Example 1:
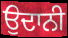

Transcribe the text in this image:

ਉਦਾਨੀ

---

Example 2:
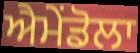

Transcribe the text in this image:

ਐਮੇਂਡੋਲਾ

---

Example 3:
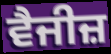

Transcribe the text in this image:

ਵੈਜੀਜ਼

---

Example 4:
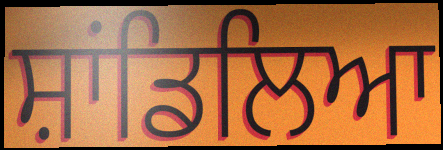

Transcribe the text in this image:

ਸ਼ਾਂਡਿਲਿਆ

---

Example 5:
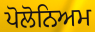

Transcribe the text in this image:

ਪੋਲੋਨਿਅਮ